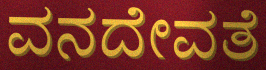
ವನದೇವತೆ